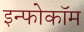
इन्फोकॉम